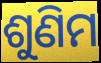
ଶୁଣିମ